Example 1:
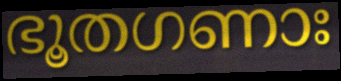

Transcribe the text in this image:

ഭൂതഗണാഃ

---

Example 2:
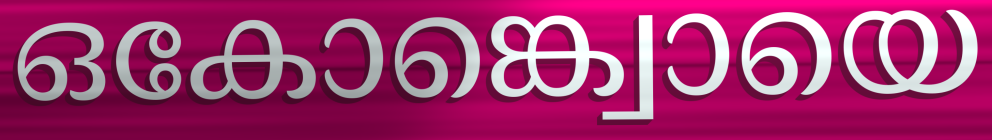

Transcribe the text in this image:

ഒകോങ്ക്വൊയെ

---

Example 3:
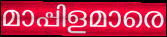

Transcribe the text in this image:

മാപ്പിളമാരെ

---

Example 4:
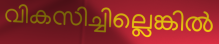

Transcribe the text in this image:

വികസിച്ചില്ലെങ്കിൽ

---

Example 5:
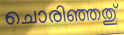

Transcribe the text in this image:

ചൊരിഞ്ഞതു്